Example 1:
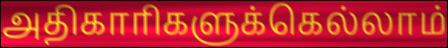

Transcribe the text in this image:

அதிகாரிகளுக்கெல்லாம்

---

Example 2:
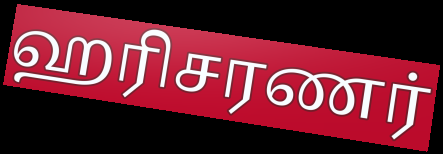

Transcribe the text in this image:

ஹரிசரணர்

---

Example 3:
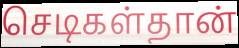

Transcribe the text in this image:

செடிகள்தான்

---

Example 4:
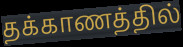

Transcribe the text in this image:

தக்காணத்தில்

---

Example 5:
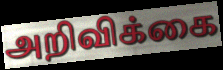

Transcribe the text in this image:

அறிவிக்கை